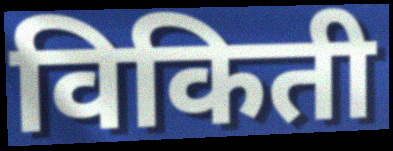
विकिती